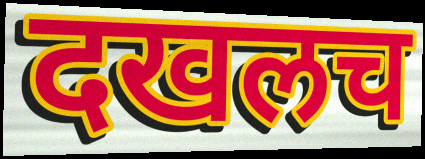
दखलच